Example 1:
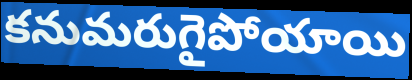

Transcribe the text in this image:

కనుమరుగైపోయాయి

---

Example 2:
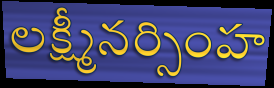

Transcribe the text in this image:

లక్ష్మీనర్సింహ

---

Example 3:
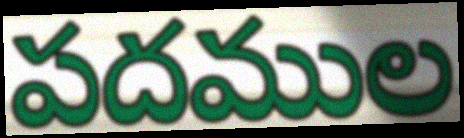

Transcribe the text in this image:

పదముల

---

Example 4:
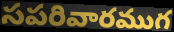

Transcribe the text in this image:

సపరివారముగ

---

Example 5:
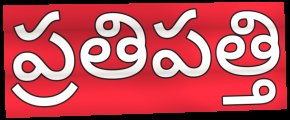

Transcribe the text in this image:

ప్రతిపత్తి